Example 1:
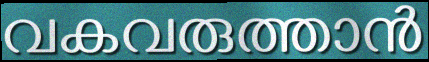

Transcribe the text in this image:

വകവരുത്താൻ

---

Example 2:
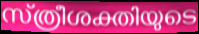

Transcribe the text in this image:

സ്‌ത്രീശക്തിയുടെ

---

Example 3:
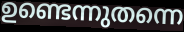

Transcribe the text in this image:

ഉണ്ടെന്നുതന്നെ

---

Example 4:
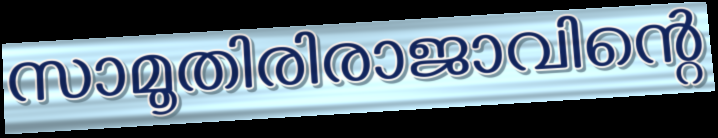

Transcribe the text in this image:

സാമൂതിരിരാജാവിന്റെ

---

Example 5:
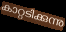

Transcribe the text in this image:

കാറ്റടിക്കുന്നു